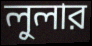
লুলার